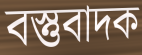
বস্তুবাদক